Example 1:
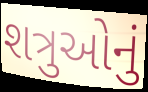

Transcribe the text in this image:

શત્રુઓનું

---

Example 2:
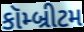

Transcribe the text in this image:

કૉમ્બ્રીટમ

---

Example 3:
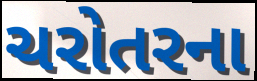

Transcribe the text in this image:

ચરોતરના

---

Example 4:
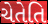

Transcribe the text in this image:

ચેતેતિ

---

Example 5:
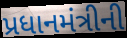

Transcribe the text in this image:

પ્રધાનમંત્રીની